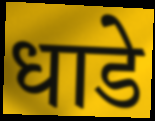
धाडे